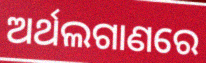
ଅର୍ଥଲଗାଣରେ